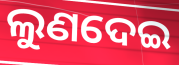
ଲୁଣଦେଇ